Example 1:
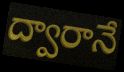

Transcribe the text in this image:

ద్వారానే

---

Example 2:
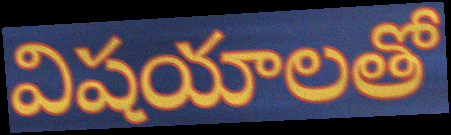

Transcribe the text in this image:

విషయాలతో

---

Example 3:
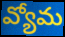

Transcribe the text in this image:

వ్యోమ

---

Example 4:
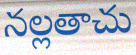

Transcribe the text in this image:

నల్లతాచు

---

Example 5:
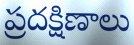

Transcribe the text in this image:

ప్రదక్షిణాలు